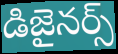
డిజైనర్స్